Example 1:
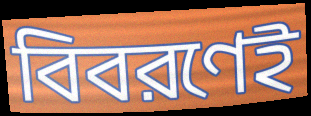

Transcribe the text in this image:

বিবরণেই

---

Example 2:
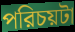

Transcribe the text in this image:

পরিচয়টা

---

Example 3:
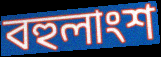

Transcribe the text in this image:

বহুলাংশ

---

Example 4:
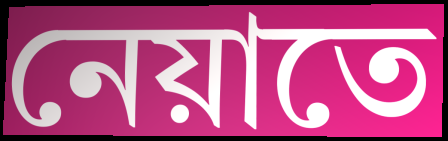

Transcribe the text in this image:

নেয়াতে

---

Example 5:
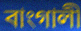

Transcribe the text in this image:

বাংগালী